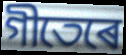
গীতেৰে